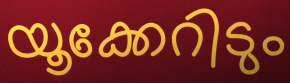
യൂക്കേറിടും